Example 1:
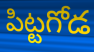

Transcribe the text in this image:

పిట్టగోడ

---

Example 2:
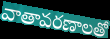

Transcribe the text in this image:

వాతావరణాలతో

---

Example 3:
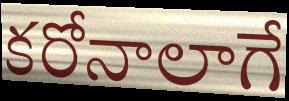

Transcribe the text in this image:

కరోనాలాగే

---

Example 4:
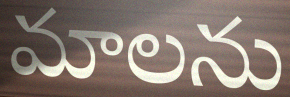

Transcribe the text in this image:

మాలను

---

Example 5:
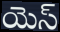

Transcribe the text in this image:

యెస్